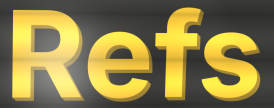
Refs